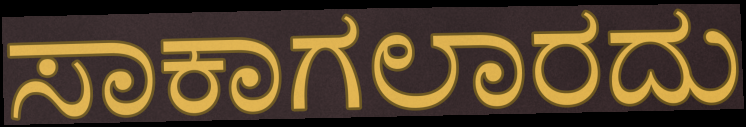
ಸಾಕಾಗಲಾರದು